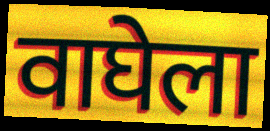
वाघेला